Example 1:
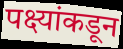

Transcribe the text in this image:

पक्ष्यांकडून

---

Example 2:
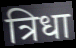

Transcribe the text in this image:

त्रिधा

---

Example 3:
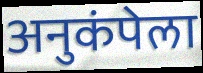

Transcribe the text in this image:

अनुकंपेला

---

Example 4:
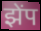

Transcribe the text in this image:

झेंप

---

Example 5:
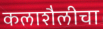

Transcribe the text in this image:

कलाशैलीचा